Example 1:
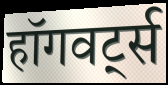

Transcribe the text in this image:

हॉगवर्ट्स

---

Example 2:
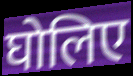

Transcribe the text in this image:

घोलिए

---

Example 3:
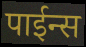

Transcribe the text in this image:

पाईन्स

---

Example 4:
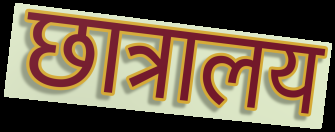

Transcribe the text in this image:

छात्रालय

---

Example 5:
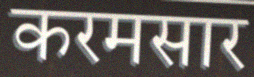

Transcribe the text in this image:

करमसार